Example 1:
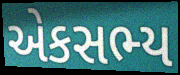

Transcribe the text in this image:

એકસભ્ય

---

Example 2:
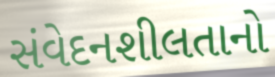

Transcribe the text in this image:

સંવેદનશીલતાનો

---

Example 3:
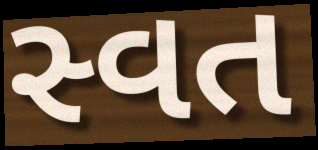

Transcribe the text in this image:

સ્વત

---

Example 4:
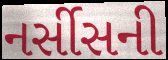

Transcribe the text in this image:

નર્સીસની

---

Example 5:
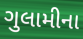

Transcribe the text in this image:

ગુલામીના